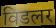
विडलर